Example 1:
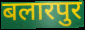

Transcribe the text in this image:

बलारपुर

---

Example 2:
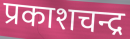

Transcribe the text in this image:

प्रकाशचन्द्र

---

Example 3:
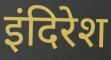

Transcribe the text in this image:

इंदिरेश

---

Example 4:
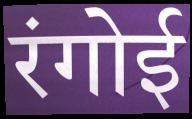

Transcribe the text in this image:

रंगोई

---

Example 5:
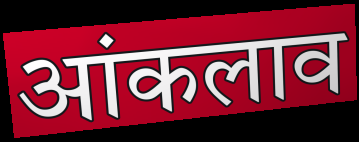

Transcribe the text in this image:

आंकलाव